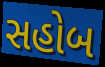
સહોબ